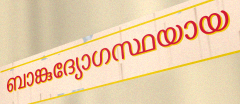
ബാങ്കുദ്യോഗസ്ഥയായ